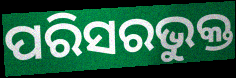
ପରିସରଭୁକ୍ତ